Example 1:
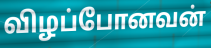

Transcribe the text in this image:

விழப்போனவன்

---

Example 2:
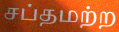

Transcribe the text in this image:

சப்தமற்ற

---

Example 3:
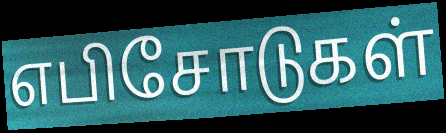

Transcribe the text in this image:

எபிசோடுகள்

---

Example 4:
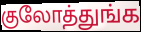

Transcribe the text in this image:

குலோத்துங்க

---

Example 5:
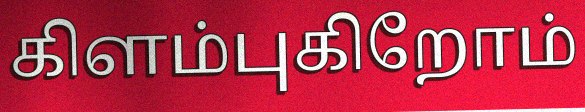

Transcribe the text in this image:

கிளம்புகிறோம்